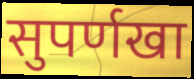
सुपर्णखा